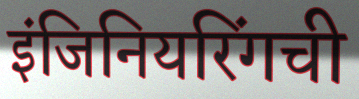
इंजिनियरिंगची